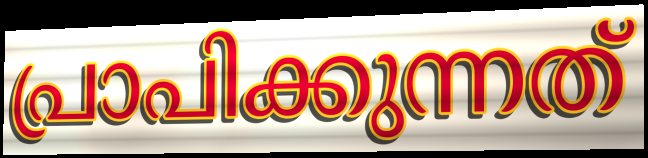
പ്രാപിക്കുന്നത്